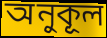
অনুকূল